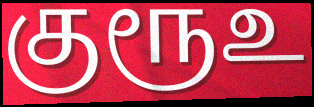
குரூஉ